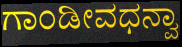
ಗಾಂಡೀವಧನ್ವಾ